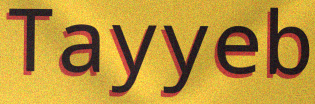
Tayyeb